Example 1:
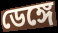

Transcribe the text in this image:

ডেঙ্গে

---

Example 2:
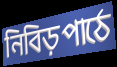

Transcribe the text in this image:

নিবিড়পাঠে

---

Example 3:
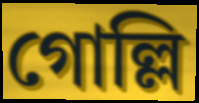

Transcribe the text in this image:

গোল্লি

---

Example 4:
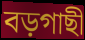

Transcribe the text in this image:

বড়গাছী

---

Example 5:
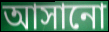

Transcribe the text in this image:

আসানো